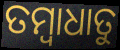
ତମ୍ବାଧାତୁ